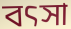
বৎসা